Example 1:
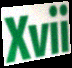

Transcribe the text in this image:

Xvii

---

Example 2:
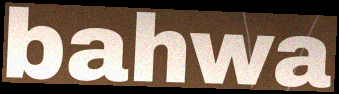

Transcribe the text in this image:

bahwa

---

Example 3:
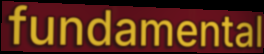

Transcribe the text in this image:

fundamental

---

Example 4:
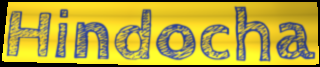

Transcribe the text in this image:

Hindocha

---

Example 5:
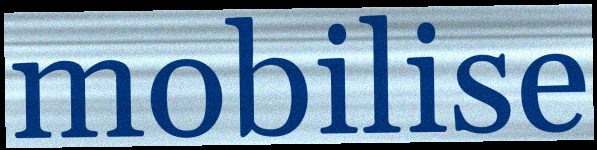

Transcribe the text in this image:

mobilise